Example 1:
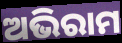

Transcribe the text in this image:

ଅଭିରାମ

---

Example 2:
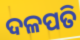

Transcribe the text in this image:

ଦଳପତି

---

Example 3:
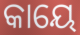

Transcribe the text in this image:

କାୟେ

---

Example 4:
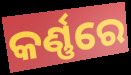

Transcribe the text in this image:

କର୍ଣ୍ଣରେ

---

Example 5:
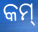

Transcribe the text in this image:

କମ୍